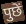
पुछें